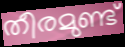
തീരമുണ്ട്